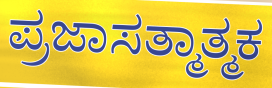
ಪ್ರಜಾಸತ್ಮಾತ್ಮಕ